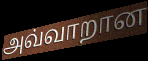
அவ்வாறான